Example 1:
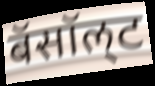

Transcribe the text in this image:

बॅसॉल्ट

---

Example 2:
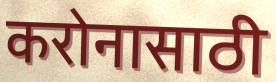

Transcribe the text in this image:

करोनासाठी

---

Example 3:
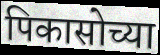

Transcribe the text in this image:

पिकासोच्या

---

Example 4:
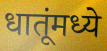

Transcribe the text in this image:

धातूंमध्ये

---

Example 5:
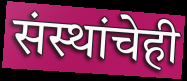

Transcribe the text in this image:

संस्थांचेही